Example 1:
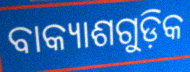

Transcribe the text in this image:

ବାକ୍ୟାଶଗୁଡ଼ିକ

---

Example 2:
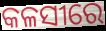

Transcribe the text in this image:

କଳସୀରେ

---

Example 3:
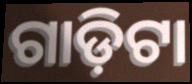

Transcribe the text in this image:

ଗାଡ଼ିଟା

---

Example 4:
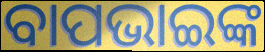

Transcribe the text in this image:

ବାପଭାଇଙ୍କ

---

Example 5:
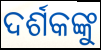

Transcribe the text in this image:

ଦର୍ଶକଙ୍କୁ